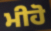
ਮੀਹੋ